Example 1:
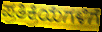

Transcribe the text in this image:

ಪ್ರತಿಕ್ರಿಯೆಗಳಿಗೆ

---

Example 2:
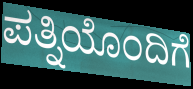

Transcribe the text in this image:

ಪತ್ನಿಯೊಂದಿಗೆ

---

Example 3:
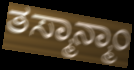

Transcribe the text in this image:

ತಸ್ಮಾನ್ಮಾಂ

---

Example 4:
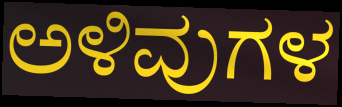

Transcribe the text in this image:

ಅಳಿವುಗಳ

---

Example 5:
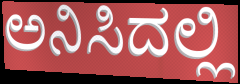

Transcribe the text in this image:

ಅನಿಸಿದಲ್ಲಿ